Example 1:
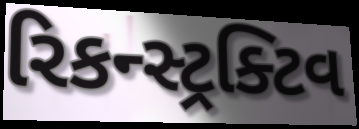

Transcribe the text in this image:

રિકન્સ્ટ્રક્ટિવ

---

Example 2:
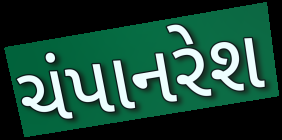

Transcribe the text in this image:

ચંપાનરેશ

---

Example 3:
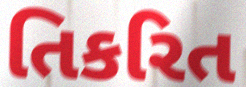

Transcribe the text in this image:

તિકરિત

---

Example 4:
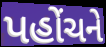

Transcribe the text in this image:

પહોંચને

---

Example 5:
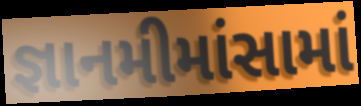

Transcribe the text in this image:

જ્ઞાનમીમાંસામાં